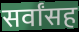
सर्वांसह